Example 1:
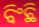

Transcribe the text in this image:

ବିଂଛି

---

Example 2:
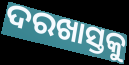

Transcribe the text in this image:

ଦରଖାସ୍ତକୁ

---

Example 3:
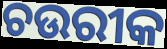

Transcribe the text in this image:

ଚଉରୀକ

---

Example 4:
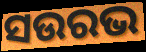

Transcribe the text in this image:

ସଉରଭ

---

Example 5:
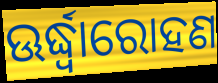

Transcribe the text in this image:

ଊର୍ଦ୍ଧ୍ୱାରୋହଣ